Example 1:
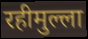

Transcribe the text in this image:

रहीमुल्ला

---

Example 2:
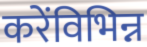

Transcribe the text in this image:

करेंविभिन्न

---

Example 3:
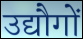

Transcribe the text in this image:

उद्यौगों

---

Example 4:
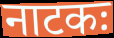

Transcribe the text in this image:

नाटकः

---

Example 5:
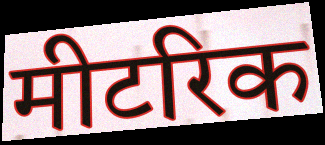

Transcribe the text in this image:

मीटरिक